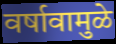
वर्षावामुळे